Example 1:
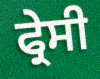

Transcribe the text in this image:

ਫ੍ਰੇਸੀ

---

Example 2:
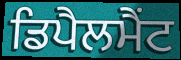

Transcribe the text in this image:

ਡਿਪੈਲਮੈਂਟ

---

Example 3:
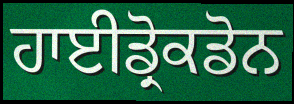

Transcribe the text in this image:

ਹਾਈਡ੍ਰੋਕਡੋਨ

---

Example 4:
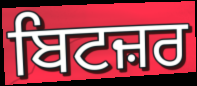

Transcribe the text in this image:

ਬਿਟਜ਼ਰ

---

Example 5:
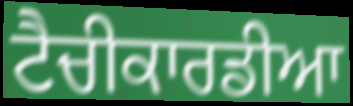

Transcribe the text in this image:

ਟੈਚੀਕਾਰਡੀਆ